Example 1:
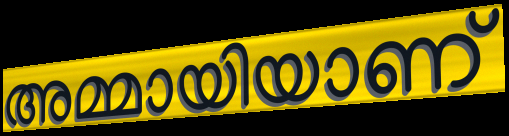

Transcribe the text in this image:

അമ്മായിയാണ്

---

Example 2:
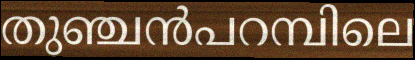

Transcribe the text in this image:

തുഞ്ചൻപറമ്പിലെ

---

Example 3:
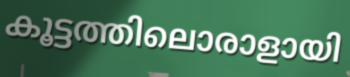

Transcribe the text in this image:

കൂട്ടത്തിലൊരാളായി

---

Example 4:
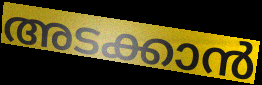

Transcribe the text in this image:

അടക്കാൻ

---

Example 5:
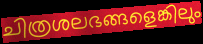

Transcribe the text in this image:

ചിത്രശലഭങ്ങളെങ്കിലും